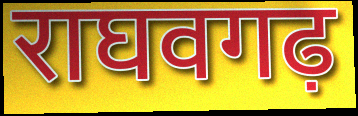
राघवगढ़